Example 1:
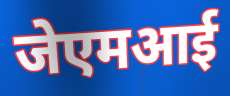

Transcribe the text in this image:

जेएमआई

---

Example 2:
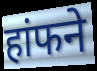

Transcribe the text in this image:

हांफने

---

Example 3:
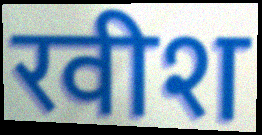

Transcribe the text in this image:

रवीश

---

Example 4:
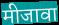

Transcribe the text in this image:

मीजावा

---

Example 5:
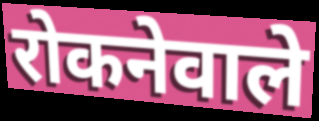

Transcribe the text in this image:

रोकनेवाले